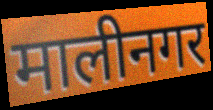
मालीनगर